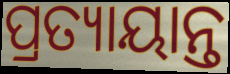
ପ୍ରତ୍ୟାୟାନ୍ତ